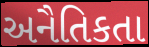
અનૈતિકતા